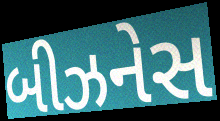
બીઝનેસ